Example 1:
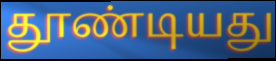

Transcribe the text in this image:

தூண்டியது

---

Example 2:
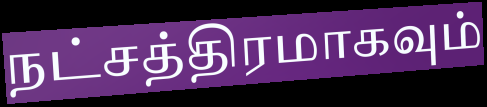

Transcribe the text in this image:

நட்சத்திரமாகவும்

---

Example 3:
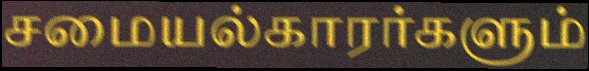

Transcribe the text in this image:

சமையல்காரர்களும்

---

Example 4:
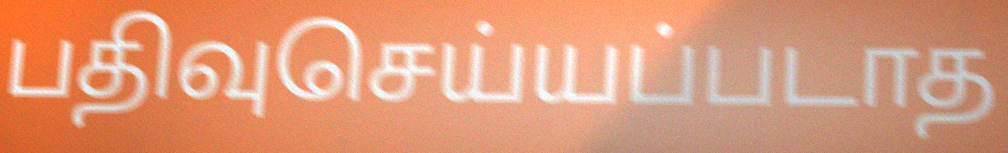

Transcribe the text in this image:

பதிவுசெய்யப்படாத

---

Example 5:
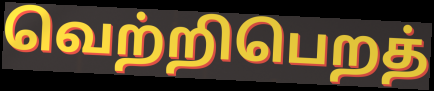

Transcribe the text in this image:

வெற்றிபெறத்